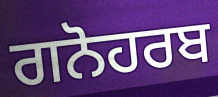
ਗਨੋਹਰਬ